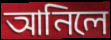
আনিলে